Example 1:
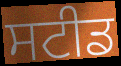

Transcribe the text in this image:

ਸਟੀਡ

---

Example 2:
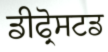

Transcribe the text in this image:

ਡੀਫ੍ਰੋਸਟਡ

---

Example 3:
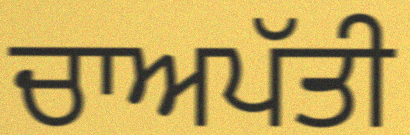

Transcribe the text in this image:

ਚਾਅਪੱਤੀ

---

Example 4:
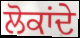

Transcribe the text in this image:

ਲੋਕਾਂਦੇ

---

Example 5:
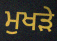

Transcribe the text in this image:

ਮੁਖੜੇ